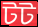
টট